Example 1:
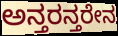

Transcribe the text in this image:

ಅನ್ತರನ್ತರೇನ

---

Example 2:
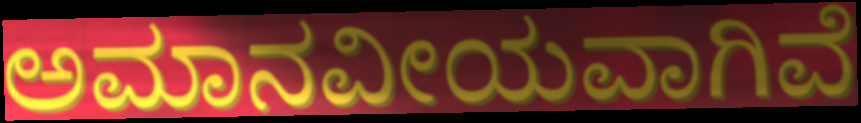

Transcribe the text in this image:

ಅಮಾನವೀಯವಾಗಿವೆ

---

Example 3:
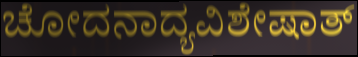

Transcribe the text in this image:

ಚೋದನಾದ್ಯವಿಶೇಷಾತ್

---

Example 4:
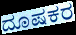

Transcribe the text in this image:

ದೂಷಕರ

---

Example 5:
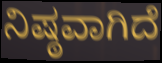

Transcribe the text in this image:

ನಿಷ್ಠವಾಗಿದೆ